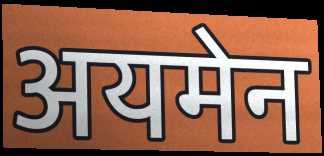
अयमेन